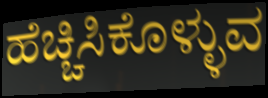
ಹೆಚ್ಚಿಸಿಕೊಳ್ಳುವ